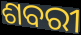
ଶବରୀ